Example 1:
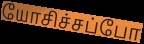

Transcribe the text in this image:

யோசிச்சப்போ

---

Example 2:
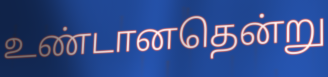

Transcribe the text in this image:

உண்டானதென்று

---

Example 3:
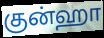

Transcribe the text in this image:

குன்ஹா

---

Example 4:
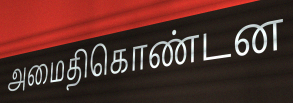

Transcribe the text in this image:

அமைதிகொண்டன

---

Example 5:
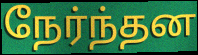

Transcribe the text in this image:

நேர்ந்தன